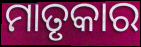
ମାତୃକାର